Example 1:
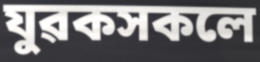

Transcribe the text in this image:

যুৱকসকলে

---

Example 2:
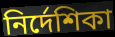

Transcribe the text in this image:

নিৰ্দেশিকা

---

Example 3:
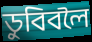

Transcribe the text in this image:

ডুবিবলৈ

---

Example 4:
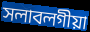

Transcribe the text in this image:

সলাবলগীয়া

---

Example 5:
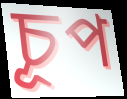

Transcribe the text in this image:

চূপ